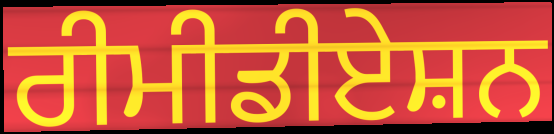
ਰੀਮੀਡੀਏਸ਼ਨ